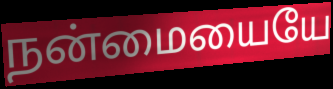
நன்மையையே